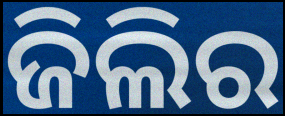
ଜିଲିର